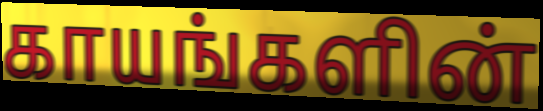
காயங்களின்